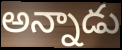
అన్నాడు